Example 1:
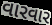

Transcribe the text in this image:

વારવાર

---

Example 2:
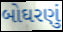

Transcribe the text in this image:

બોઘરણું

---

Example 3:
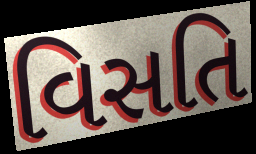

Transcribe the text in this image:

વિસતિ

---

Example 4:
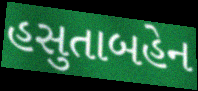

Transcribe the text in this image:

હસુતાબહેન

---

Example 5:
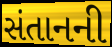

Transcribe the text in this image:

સંતાનની